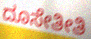
ದೂಸೇತೀತಿ